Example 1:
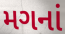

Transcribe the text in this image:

મગનાં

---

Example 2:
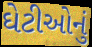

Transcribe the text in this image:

ઘેટીઓનું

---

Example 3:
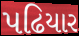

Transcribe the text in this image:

પઢિયાર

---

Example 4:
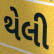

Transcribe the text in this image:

થેલી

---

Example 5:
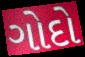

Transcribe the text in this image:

ગોદો